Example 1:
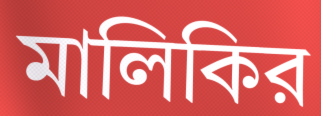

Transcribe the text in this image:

মালিকির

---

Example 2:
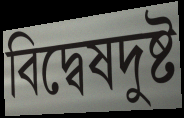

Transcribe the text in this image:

বিদ্বেষদুষ্ট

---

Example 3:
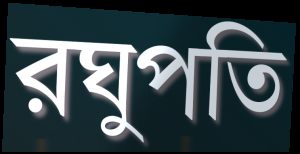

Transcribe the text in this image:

রঘুপতি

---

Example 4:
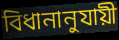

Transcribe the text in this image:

বিধানানুযায়ী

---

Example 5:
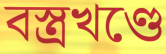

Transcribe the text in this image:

বস্ত্রখণ্ডে